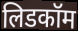
लिडकॉम